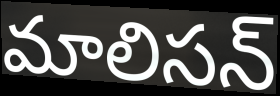
మాలిసన్